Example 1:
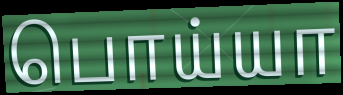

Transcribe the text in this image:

பொய்யா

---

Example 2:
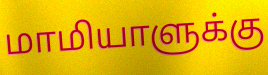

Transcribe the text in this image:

மாமியாளுக்கு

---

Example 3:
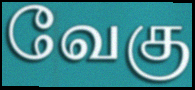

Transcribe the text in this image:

வேகு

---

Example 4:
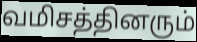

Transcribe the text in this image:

வமிசத்தினரும்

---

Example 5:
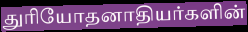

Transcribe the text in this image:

துரியோதனாதியர்களின்